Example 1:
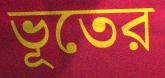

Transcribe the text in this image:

ভূতের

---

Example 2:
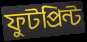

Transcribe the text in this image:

ফুটপ্রিন্ট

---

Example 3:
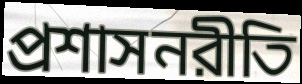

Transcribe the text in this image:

প্রশাসনরীতি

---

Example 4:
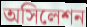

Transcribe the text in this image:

অসিলেশন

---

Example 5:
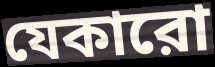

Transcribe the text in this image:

যেকারো